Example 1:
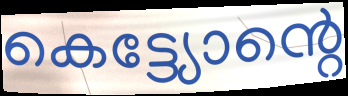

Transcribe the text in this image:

കെട്ട്യോന്റെ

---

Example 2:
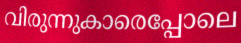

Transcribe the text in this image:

വിരുന്നുകാരെപ്പോലെ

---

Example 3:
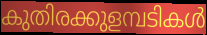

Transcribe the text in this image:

കുതിരക്കുളമ്പടികൾ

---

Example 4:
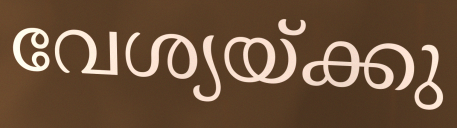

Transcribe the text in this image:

വേശ്യയ്ക്കു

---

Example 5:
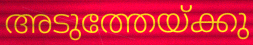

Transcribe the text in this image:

അടുത്തേയ്ക്കു